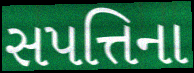
સપત્તિના